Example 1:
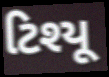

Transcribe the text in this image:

ટિશ્યૂ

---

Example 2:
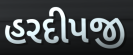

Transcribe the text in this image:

હરદીપજી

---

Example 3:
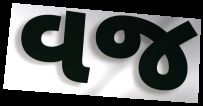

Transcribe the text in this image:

વજ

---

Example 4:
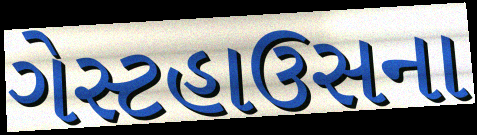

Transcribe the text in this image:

ગેસ્ટહાઉસના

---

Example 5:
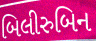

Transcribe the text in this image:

બિલીરુબિન